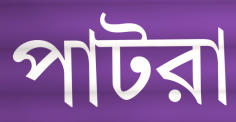
পাটরা